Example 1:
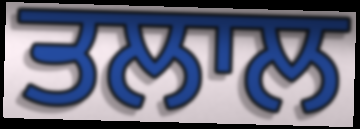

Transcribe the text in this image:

ਤਲਾਲ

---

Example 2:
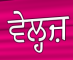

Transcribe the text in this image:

ਵੇਲ੍ਹਜ਼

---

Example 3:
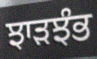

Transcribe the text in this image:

ਝਾੜਝੰਭ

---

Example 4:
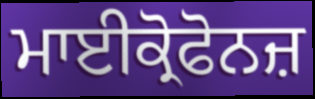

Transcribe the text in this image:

ਮਾਈਕ੍ਰੋਫੋਨਜ਼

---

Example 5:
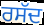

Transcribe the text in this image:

ਰਸੱਦ